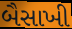
બૈસાખી